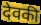
देवकी